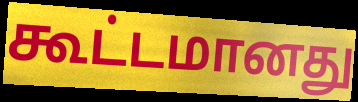
கூட்டமானது